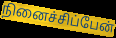
நினைச்சிப்பேன்